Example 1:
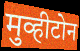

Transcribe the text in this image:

मुव्हीटोन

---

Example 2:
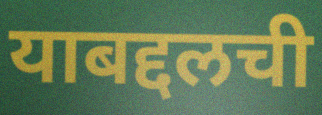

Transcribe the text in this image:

याबद्दलची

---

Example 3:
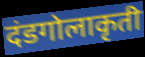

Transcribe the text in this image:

दंडगोलाकृती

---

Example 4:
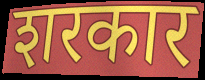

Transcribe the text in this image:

शरकार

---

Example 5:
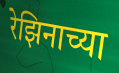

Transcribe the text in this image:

रेझिनाच्या